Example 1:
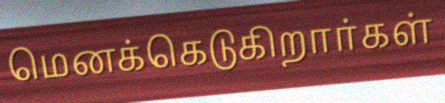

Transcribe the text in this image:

மெனக்கெடுகிறார்கள்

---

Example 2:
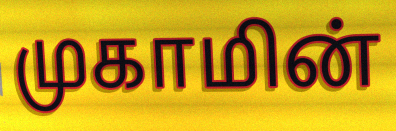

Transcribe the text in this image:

முகாமின்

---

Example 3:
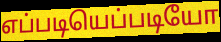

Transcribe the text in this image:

எப்படியெப்படியோ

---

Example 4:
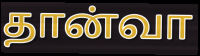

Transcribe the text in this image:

தான்வா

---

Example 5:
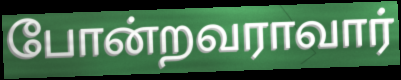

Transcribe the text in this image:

போன்றவராவார்